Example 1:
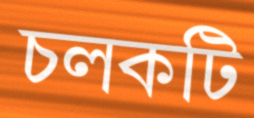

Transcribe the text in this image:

চলকটি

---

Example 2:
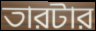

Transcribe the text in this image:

তারটার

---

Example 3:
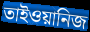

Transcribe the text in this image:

তাইওয়ানিজ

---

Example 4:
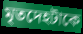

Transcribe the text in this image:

মৃতদেহটাকে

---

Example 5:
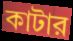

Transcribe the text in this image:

কাটার